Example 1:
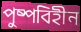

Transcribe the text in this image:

পুষ্পবিহীন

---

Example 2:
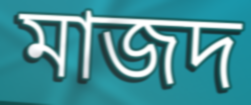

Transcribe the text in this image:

মাজদ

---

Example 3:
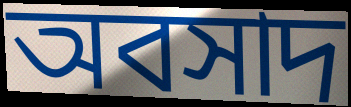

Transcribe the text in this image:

অবসাদ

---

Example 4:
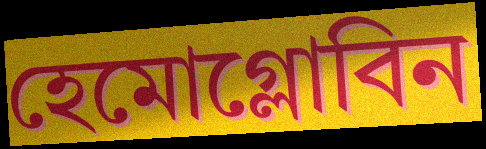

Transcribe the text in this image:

হেমোগ্লোবিন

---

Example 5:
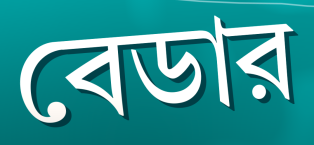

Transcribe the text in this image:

বেডার